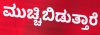
ಮುಚ್ಚಿಬಿಡುತ್ತಾರೆ